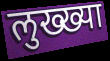
लुख्ख्या